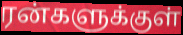
ரன்களுக்குள்